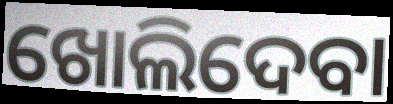
ଖୋଲିଦେବା